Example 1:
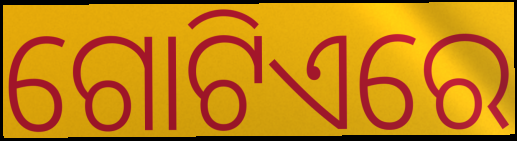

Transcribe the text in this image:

ଗୋଟିଏରେ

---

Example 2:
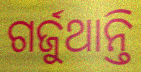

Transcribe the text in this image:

ଗର୍ଜୁଥାନ୍ତି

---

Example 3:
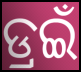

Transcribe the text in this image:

ଡ୍ରଇଁ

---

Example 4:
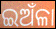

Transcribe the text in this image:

ଇଅଁଳା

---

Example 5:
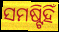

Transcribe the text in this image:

ସମଷ୍ଟିହିଁ